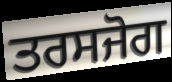
ਤਰਸਜੋਗ